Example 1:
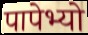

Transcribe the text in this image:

पापेभ्यो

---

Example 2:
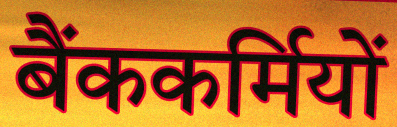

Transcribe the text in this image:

बैंककर्मियों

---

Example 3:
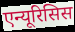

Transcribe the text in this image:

एन्यूरिसिस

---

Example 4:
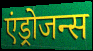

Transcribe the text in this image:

एंड्रोजन्स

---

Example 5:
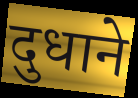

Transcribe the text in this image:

दुधाने